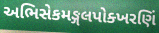
અભિસેકમઙ્ગલપોક્ખરણિં